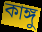
কাঙ্গু